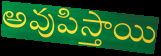
అవుపిస్తాయి